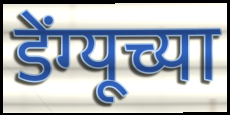
डेंग्यूच्या